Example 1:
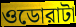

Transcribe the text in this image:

ওডোরাটা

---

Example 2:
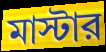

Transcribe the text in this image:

মাস্টার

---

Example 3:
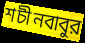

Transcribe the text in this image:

শচীনবাবুর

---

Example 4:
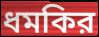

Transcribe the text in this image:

ধমকির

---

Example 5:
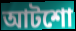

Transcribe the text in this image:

আটশো